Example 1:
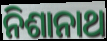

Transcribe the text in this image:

ନିଶାନାଥ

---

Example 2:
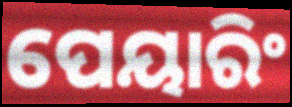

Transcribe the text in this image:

ପେୟାରିଂ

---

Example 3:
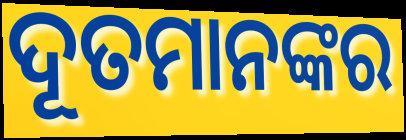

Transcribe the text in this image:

ଦୂତମାନଙ୍କର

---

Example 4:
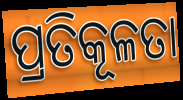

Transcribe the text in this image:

ପ୍ରତିକୂଳତା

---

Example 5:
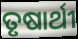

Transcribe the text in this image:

ତୃଷାର୍ଥୀ